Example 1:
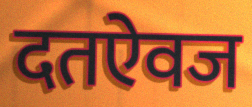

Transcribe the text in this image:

दतऐवज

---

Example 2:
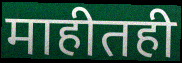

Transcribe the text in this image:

माहीतही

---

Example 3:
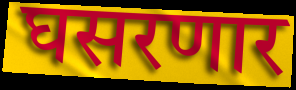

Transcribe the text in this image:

घसरणार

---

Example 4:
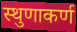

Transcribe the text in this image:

स्थुणाकर्ण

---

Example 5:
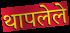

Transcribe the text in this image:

थापलेले